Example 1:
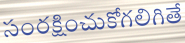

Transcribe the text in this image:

సంరక్షించుకోగలిగితే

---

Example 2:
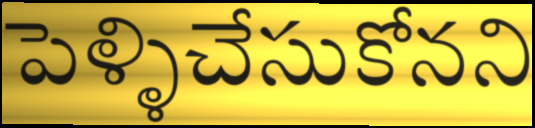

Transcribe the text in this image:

పెళ్ళిచేసుకోనని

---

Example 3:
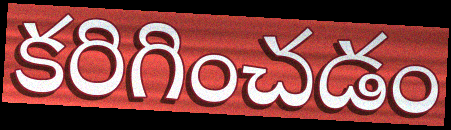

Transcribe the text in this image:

కరిగించడం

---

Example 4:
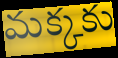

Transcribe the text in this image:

మక్కకు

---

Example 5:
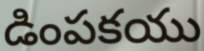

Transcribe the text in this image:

డింపకయు